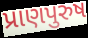
પ્રાણપુરુષ